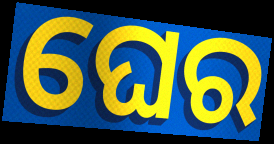
ଘେର